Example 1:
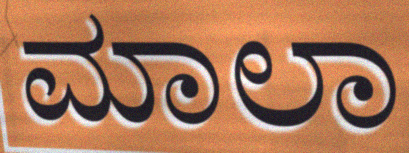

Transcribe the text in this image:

ಮಾಲಾ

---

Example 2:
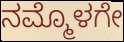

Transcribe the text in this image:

ನಮ್ಮೊಳಗೇ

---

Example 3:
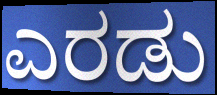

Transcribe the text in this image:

ಎರಡು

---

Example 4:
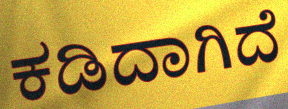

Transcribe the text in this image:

ಕಡಿದಾಗಿದೆ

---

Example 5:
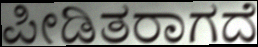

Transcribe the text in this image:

ಪೀಡಿತರಾಗದೆ